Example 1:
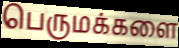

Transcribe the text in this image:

பெருமக்களை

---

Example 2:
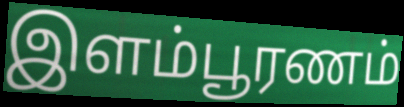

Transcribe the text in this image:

இளம்பூரணம்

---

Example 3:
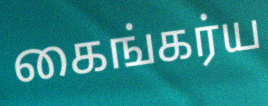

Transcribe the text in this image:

கைங்கர்ய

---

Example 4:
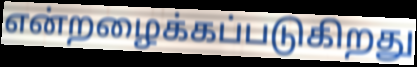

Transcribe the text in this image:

என்றழைக்கப்படுகிறது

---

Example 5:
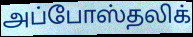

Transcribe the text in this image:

அப்போஸ்தலிக்